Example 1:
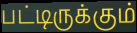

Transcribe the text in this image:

பட்டிருக்கும்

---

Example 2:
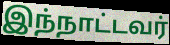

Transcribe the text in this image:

இந்நாட்டவர்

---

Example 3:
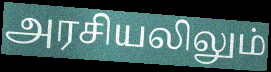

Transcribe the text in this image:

அரசியலிலும்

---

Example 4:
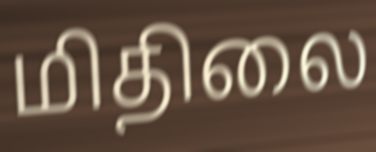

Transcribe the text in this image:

மிதிலை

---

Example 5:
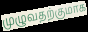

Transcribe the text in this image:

முழுவதற்குமாக